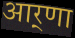
आर्णा